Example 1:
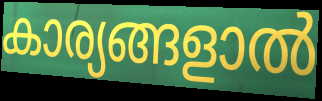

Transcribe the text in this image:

കാര്യങ്ങളാൽ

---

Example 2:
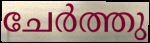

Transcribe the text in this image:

ചേർത്തു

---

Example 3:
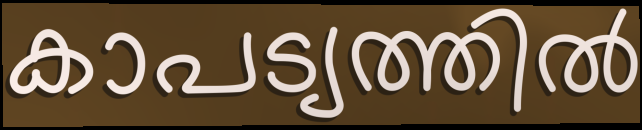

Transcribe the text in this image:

കാപട്യത്തിൽ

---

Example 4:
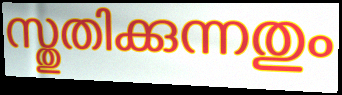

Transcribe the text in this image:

സ്തുതിക്കുന്നതും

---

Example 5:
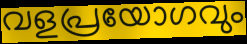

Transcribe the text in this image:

വളപ്രയോഗവും